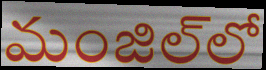
మంజిల్‌లో